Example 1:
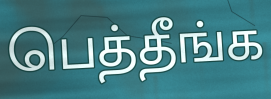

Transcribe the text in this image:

பெத்தீங்க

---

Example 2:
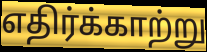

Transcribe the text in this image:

எதிர்க்காற்று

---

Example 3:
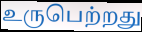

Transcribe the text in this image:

உருபெற்றது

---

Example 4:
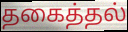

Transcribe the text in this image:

தகைத்தல்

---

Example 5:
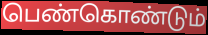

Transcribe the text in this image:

பெண்கொண்டும்